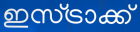
ഇസ്ട്രാക്ക്